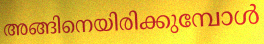
അങ്ങിനെയിരിക്കുമ്പോൾ